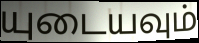
யுடையவும்